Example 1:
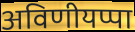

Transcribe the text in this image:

अविणीयप्पा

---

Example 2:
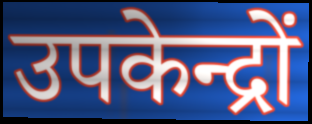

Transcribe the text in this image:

उपकेन्द्रों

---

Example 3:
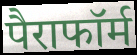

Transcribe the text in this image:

पैराफॉर्म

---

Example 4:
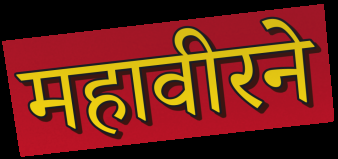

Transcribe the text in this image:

महावीरने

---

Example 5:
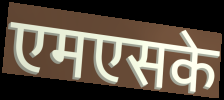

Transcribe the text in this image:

एमएसके